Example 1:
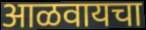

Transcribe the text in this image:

आळवायचा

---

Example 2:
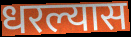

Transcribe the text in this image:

धरल्यास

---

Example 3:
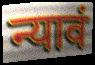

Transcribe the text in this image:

न्यावं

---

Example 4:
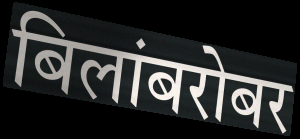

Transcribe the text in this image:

बिलांबरोबर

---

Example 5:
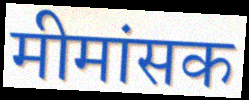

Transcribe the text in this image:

मीमांसक